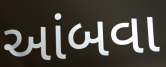
આંબવા